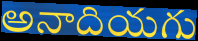
అనాదియగు